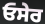
ਓਸੇਰ